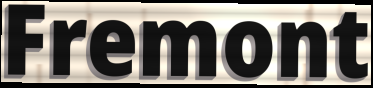
Fremont